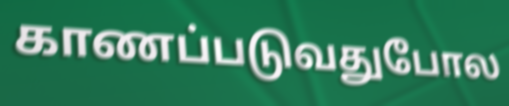
காணப்படுவதுபோல